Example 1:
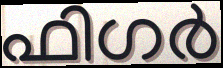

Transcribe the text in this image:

ഫിഗർ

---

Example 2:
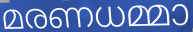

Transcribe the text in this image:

മരണധമ്മാ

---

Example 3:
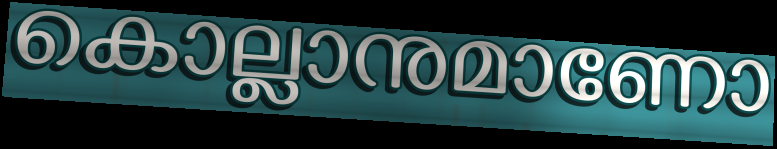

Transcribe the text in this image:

കൊല്ലാനുമാണോ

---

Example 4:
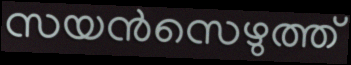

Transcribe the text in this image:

സയൻസെഴുത്ത്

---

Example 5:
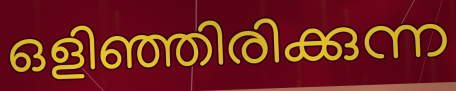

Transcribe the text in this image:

ഒളിഞ്ഞിരിക്കുന്ന